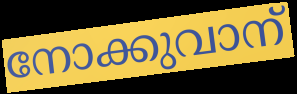
നോക്കുവാന്